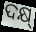
ଦକ୍ଷ୍